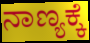
ನಾಣ್ಯಕ್ಕೆ